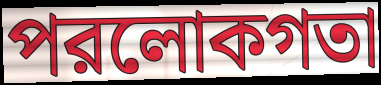
পরলোকগতা